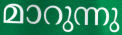
മാറുന്നു